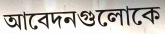
আবেদনগুলোকে